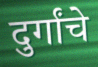
दुर्गांचे